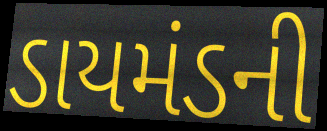
ડાયમંડની